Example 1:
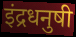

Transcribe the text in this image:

इंद्रधनुषी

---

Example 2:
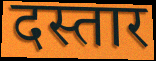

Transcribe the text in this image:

दस्तार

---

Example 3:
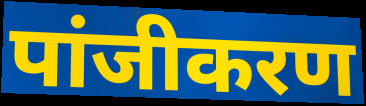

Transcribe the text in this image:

पांजीकरण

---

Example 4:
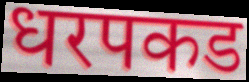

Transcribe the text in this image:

धरपकड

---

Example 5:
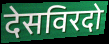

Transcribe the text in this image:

देसविरदो